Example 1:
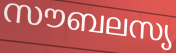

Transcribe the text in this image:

സൗബലസ്യ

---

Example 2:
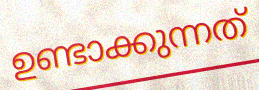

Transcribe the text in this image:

ഉണ്ടാക്കുന്നത്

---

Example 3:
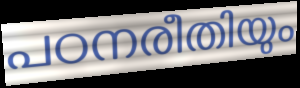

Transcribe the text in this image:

പഠനരീതിയും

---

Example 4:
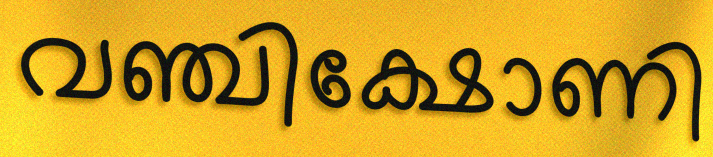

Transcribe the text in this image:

വഞ്ചിക്ഷോണി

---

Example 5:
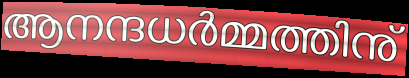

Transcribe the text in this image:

ആനന്ദധർമ്മത്തിനു്